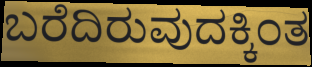
ಬರೆದಿರುವುದಕ್ಕಿಂತ